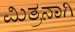
ಮಿತ್ರನಾಗಿ